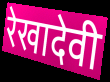
रेखादेवी